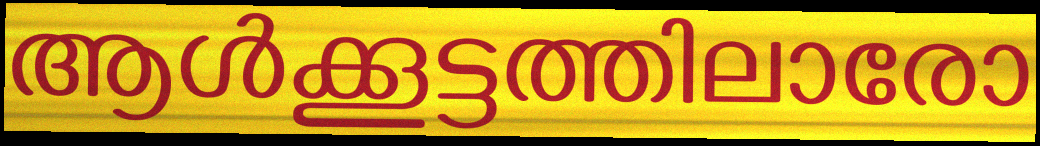
ആൾക്കൂട്ടത്തിലാരോ